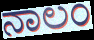
ನಾಲಂ